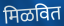
मिळवित